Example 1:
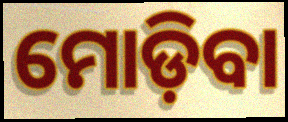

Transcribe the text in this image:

ମୋଡ଼ିବା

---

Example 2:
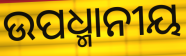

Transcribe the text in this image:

ଉପଧ୍ମାନୀୟ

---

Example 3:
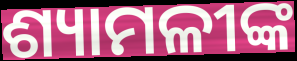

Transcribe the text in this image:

ଶ୍ୟାମଳୀଙ୍କ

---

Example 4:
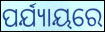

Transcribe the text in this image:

ପର୍ଯ୍ଯାୟରେ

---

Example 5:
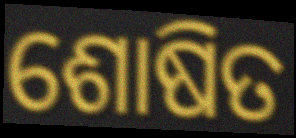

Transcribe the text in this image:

ଶୋଷିତ